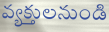
వ్యక్తులనుండి